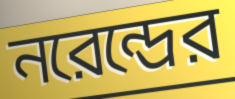
নরেন্দ্রের